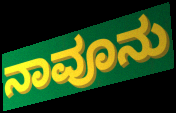
ನಾವೂನು